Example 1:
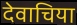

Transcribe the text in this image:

देवाचिया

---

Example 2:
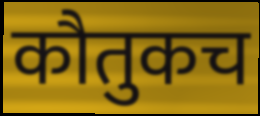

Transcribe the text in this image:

कौतुकच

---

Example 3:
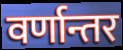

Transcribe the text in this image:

वर्णान्तर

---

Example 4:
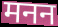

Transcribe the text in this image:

मनन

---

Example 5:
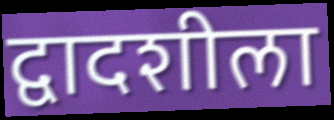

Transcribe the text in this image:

द्वादशीला